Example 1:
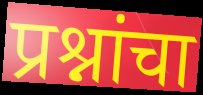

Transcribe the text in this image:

प्रश्नांचा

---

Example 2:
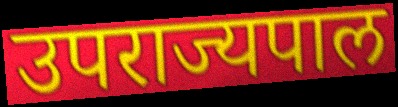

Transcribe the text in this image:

उपराज्यपाल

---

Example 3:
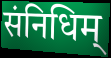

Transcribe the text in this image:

संनिधिम्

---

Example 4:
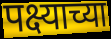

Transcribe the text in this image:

पक्ष्याच्या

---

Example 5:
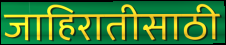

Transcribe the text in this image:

जाहिरातीसाठी